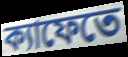
ক্যাফেতে